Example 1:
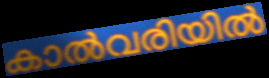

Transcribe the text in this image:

കാൽവരിയിൽ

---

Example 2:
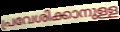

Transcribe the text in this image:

പ്രവേശിക്കാനുള്ള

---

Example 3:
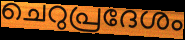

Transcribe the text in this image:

ചെറുപ്രദേശം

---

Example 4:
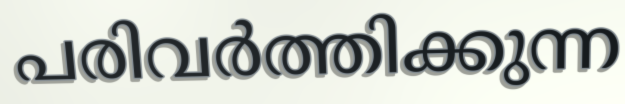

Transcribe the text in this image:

പരിവർത്തിക്കുന്ന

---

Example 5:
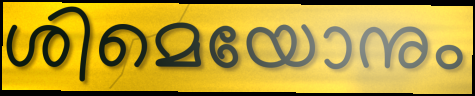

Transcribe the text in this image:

ശിമെയോനും